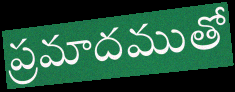
ప్రమాదముతో